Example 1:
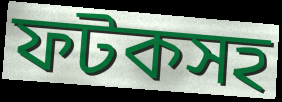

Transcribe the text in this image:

ফটকসহ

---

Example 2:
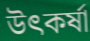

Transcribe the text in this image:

উৎকর্ষা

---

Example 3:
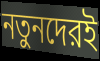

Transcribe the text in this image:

নতুনদেরই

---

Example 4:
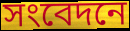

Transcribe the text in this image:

সংবেদনে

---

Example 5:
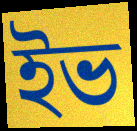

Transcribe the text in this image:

ইভ